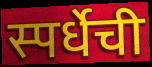
स्पर्धेची